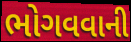
ભોગવવાની